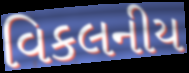
વિકલનીય